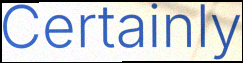
Certainly